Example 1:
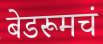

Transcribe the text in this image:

बेडरूमचं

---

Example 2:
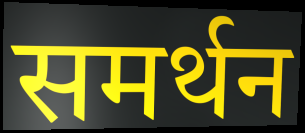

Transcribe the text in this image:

समर्थन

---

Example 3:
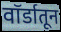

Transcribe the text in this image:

वॉर्डातून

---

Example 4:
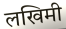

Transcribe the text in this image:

लखिमी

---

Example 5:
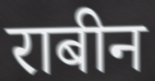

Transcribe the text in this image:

राबीन